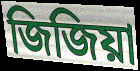
জিজিয়া